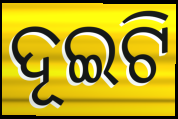
ଦୂଇଟି